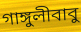
গাঙ্গুলীবাবু